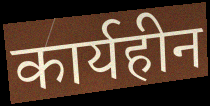
कार्यहीन